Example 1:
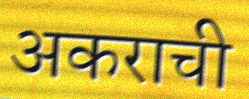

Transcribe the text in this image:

अकराची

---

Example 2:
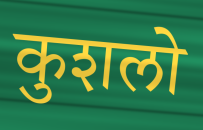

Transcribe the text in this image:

कुशलो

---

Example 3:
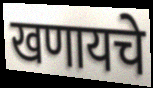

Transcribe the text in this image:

खणायचे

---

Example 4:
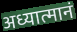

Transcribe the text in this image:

अध्यात्मानं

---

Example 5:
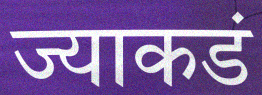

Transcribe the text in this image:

ज्याकडं